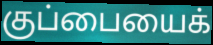
குப்பையைக்